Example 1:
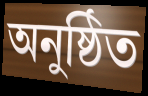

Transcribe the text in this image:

অনুষ্ঠিত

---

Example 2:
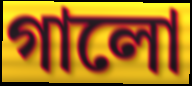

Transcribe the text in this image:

গালো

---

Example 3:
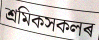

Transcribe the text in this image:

শ্ৰমিকসকলৰ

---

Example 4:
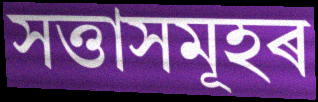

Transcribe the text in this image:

সত্তাসমূহৰ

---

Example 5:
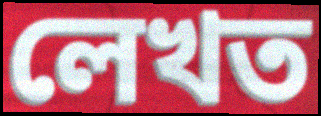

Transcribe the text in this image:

লেখত